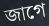
জাগে